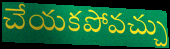
చేయకపోవచ్చు